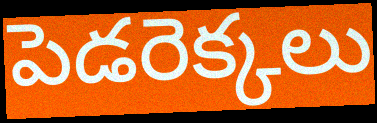
పెడరెక్కలు